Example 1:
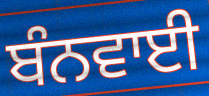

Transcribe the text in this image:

ਬੰਨਵਾਈ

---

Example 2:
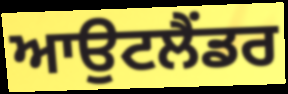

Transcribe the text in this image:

ਆਉਟਲੈਂਡਰ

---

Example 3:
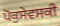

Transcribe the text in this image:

ਪੋਕੁਸੇਵਸਕੀ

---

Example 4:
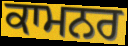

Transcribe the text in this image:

ਕਾਮਨਰ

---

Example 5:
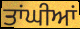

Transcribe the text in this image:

ਤਾਂਘੀਆਂ